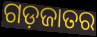
ଗଡ଼ଜାତର